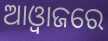
ଆଓ୍ୱାଜରେ